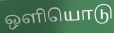
ஒளியொடு